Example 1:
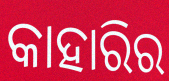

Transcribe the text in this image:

କାହାରିର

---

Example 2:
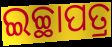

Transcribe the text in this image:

ଇଚ୍ଛାପତ୍ର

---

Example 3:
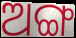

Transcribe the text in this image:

ଅଙ୍ଗ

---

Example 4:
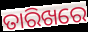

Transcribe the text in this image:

ତାରିଖରେ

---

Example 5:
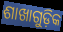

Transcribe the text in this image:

ଶାଖାଗୁଡ଼ିକ